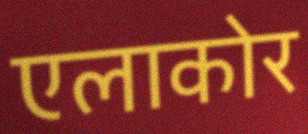
एलाकोर